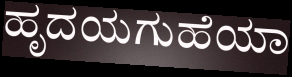
ಹೃದಯಗುಹೆಯಾ